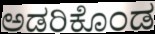
ಅಡರಿಕೊಂಡ